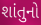
શાંતુનો